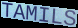
TAMILS